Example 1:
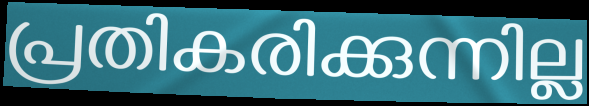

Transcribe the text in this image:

പ്രതികരിക്കുന്നില്ല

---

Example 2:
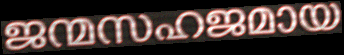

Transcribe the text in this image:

ജന്മസഹജമായ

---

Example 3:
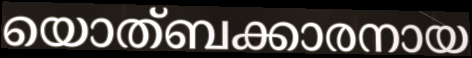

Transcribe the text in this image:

യൊത്ബക്കാരനായ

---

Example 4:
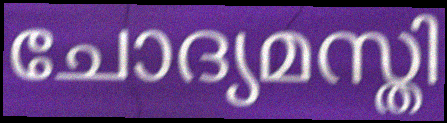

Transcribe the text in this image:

ചോദ്യമസ്തി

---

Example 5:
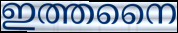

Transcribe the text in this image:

ഇത്തനൈ